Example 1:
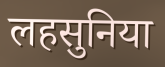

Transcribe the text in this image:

लहसुनिया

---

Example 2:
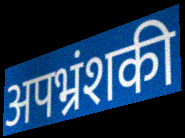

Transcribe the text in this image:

अपभ्रंशकी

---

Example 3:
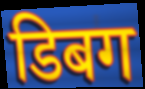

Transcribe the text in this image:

डिबग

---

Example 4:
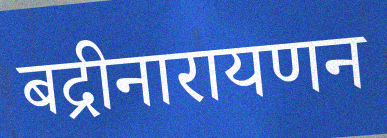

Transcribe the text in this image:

बद्रीनारायणन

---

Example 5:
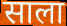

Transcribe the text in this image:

साला